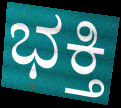
ಭಕ್ತಿ